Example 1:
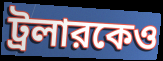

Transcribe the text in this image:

ট্রলারকেও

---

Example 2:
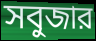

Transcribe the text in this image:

সবুজার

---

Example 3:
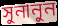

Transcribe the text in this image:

সুনানুন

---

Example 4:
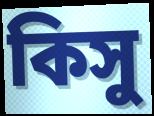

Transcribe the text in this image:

কিসু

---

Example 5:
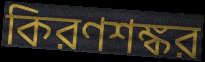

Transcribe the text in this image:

কিরণশঙ্কর